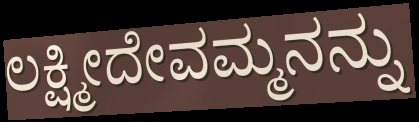
ಲಕ್ಷ್ಮೀದೇವಮ್ಮನನ್ನು